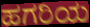
ಹಗರಿಯ